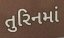
તુરિનમાં